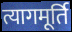
त्यागमूर्ति